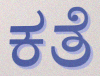
ಕತೆ